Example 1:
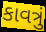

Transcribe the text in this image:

કાવત્રું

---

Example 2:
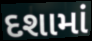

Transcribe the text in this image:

દશામાં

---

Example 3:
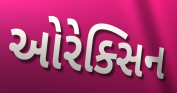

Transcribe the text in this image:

ઓરેક્સિન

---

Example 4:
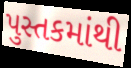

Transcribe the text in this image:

પુસ્તકમાંથી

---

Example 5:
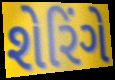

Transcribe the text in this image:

શેરિંગે